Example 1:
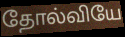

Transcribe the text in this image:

தோல்வியே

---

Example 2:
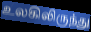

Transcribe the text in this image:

உலகிலிருந்து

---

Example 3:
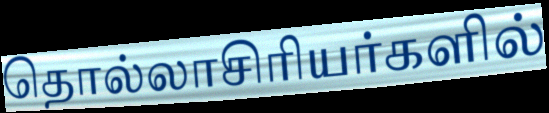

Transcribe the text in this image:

தொல்லாசிரியர்களில்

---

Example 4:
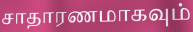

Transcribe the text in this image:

சாதாரணமாகவும்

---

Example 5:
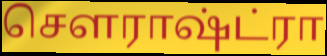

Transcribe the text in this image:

சௌராஷ்ட்ரா